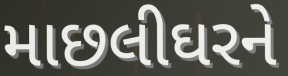
માછલીઘરને